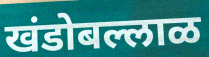
खंडोबल्लाळ